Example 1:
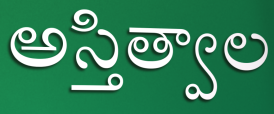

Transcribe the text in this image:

అస్తిత్వాల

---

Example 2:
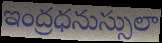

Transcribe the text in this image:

ఇంద్రధనుస్సులా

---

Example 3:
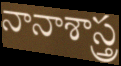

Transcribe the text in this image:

నానాశాస్త్ర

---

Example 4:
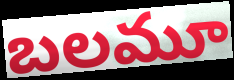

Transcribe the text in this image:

బలమూ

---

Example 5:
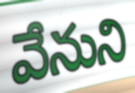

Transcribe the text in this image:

వేనుని